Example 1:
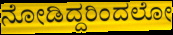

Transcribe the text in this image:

ನೋಡಿದ್ದರಿಂದಲೋ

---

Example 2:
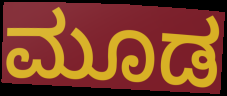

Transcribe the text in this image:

ಮೂಡ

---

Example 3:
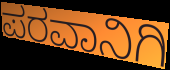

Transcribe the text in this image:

ಪರವಾನಿಗಿ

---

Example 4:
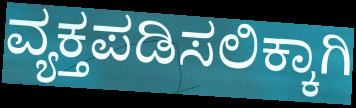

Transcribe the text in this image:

ವ್ಯಕ್ತಪಡಿಸಲಿಕ್ಕಾಗಿ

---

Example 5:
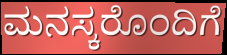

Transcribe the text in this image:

ಮನಸ್ಕರೊಂದಿಗೆ